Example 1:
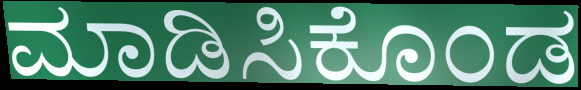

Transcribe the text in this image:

ಮಾಡಿಸಿಕೊಂಡ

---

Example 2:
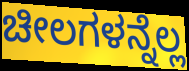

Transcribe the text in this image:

ಚೀಲಗಳನ್ನೆಲ್ಲ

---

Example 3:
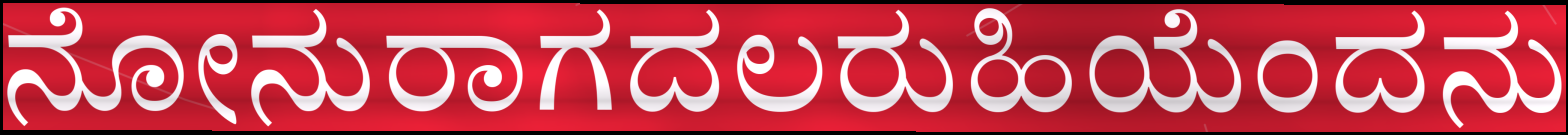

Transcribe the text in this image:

ನೋನುರಾಗದಲರುಹಿಯೆಂದನು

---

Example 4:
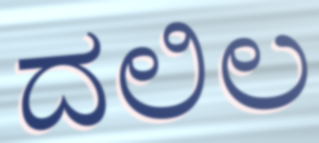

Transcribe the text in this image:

ದಲಿಲ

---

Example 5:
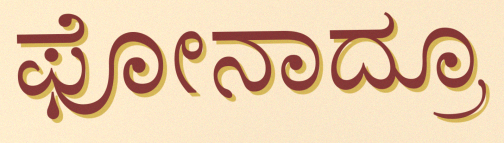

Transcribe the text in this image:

ಫೋನಾದ್ರೂ